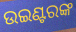
ଉଇଣ୍ଟରଙ୍କ